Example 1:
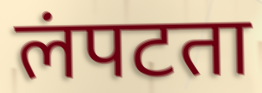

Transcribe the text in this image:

लंपटता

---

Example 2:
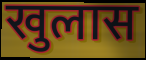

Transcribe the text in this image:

खुलास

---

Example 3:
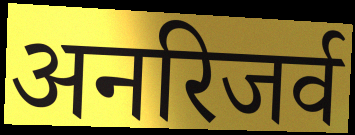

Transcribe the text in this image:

अनरिजर्व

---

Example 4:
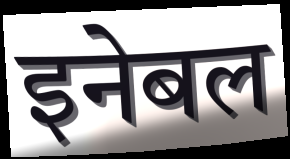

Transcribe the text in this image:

इनेबल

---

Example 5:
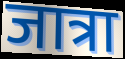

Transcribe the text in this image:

जात्रा